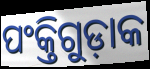
ପଂକ୍ତିଗୁଡ଼ାକ